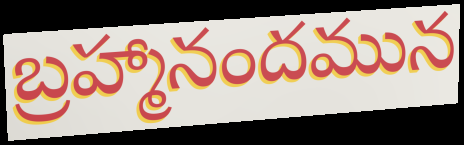
బ్రహ్మానందమున